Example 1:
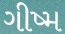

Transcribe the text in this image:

ગીષ્મ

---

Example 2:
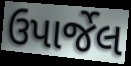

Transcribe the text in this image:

ઉપાર્જેલ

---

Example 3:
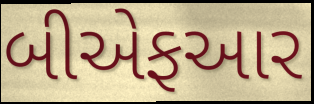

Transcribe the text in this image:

બીએફઆર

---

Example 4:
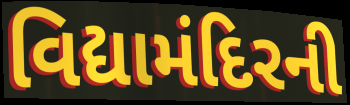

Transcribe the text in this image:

વિદ્યામંદિરની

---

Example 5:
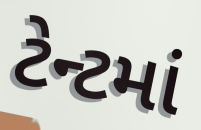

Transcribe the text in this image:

ટેન્ટમાં